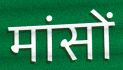
मांसों